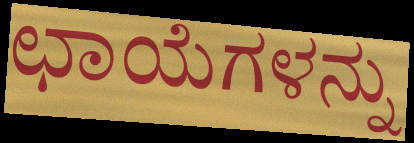
ಛಾಯೆಗಳನ್ನು